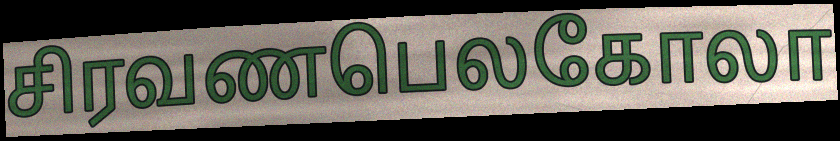
சிரவணபெலகோலா